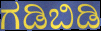
ಗಡಿಬಿಡಿ